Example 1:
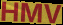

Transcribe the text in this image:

HMV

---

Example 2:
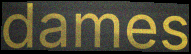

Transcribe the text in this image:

dames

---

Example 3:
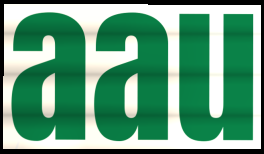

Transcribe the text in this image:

aau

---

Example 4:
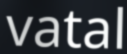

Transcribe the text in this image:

vatal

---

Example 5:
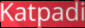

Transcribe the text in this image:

Katpadi